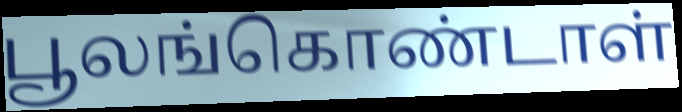
பூலங்கொண்டாள்